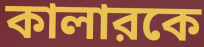
কালারকে